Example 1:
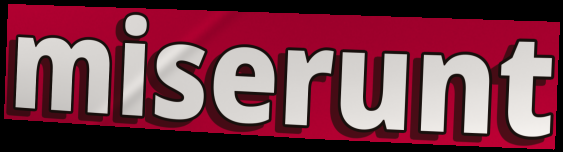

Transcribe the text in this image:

miserunt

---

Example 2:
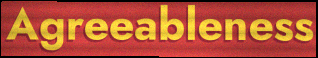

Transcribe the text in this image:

Agreeableness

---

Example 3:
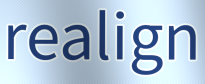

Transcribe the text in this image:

realign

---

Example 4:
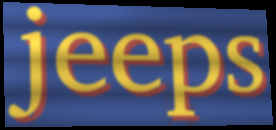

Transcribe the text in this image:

jeeps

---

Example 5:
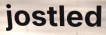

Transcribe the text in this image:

jostled